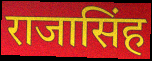
राजासिंह